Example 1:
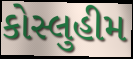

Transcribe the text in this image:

કોસ્લુહીમ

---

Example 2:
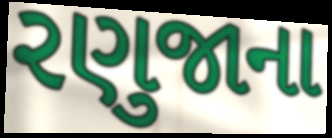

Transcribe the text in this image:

રણુજાના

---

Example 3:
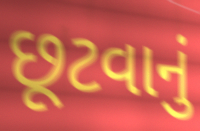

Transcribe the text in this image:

છૂટવાનું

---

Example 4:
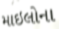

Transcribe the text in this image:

માઇલોના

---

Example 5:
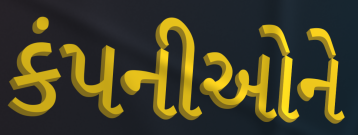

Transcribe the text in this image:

કંપનીઓને